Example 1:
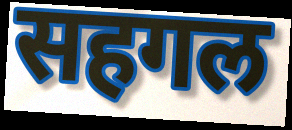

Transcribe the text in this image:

सहगल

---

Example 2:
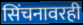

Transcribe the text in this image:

सिंचनावरही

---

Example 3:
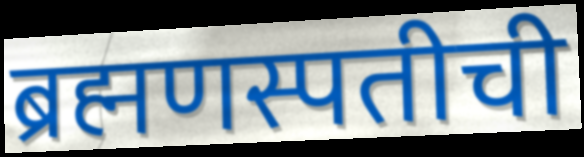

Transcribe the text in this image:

ब्रह्मणस्पतीची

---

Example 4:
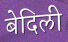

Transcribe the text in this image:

बेदिली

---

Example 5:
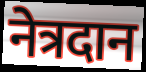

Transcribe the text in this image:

नेत्रदान